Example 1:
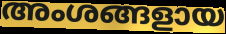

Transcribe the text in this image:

അംശങ്ങളായ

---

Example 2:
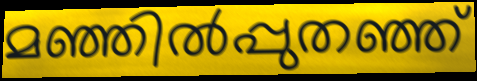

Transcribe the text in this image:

മഞ്ഞിൽപ്പുതഞ്ഞ്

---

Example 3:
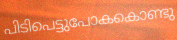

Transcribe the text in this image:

പിടിപെട്ടുപോകകൊണ്ടു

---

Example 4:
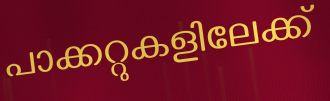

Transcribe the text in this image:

പാക്കറ്റുകളിലേക്ക്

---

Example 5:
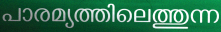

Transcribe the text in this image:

പാരമ്യത്തിലെത്തുന്ന